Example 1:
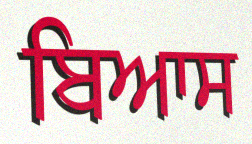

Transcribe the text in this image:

ਬਿਆਸ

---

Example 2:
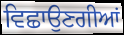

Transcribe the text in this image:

ਵਿਛਾਉਣਗੀਆਂ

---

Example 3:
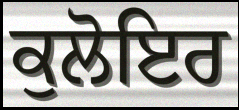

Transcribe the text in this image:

ਕੁਲੋਇਰ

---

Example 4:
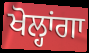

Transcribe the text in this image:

ਖੋਲ੍ਹਾਂਗਾ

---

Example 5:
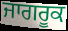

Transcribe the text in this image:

ਜਾਗਰੂਕ